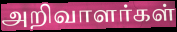
அறிவாளர்கள்